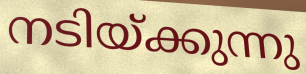
നടിയ്ക്കുന്നു